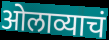
ओलाव्याचं